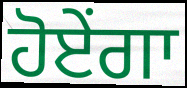
ਹੋਏਂਗਾ